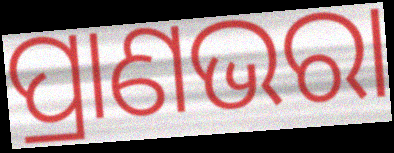
ପ୍ରାଣଭରା